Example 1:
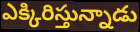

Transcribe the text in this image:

ఎక్కిరిస్తున్నాడు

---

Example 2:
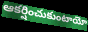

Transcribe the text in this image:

ఆకర్షించుకుంటాయో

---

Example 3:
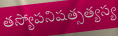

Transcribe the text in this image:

తస్యోపనిషత్సత్యస్య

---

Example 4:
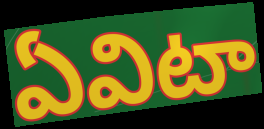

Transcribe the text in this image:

ఏవిటా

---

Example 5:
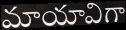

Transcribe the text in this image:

మాయావిగా